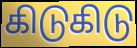
கிடுகிடு